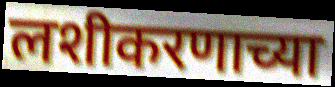
लशीकरणाच्या